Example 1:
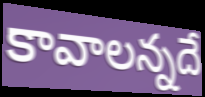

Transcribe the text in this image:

కావాలన్నదే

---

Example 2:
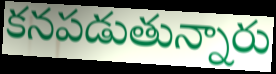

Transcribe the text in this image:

కనపడుతున్నారు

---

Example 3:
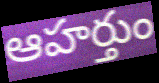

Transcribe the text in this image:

ఆహర్తుం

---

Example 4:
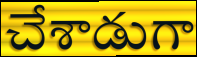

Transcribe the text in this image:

చేశాడుగా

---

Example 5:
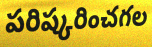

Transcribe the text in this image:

పరిష్కరించగల